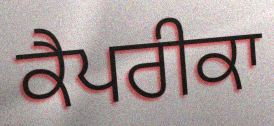
ਕੈਪਰੀਕਾ